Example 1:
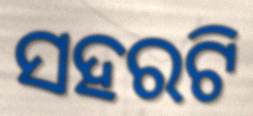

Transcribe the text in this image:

ସହରଟି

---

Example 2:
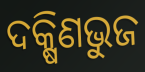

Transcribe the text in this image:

ଦକ୍ଷିଣଭୁଜ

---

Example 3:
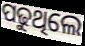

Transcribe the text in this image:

ପଢୁଥିଲେ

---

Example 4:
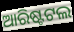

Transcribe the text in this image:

ଆରିଷ୍ଟଟଲ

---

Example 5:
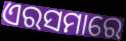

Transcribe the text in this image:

ଏରସମାରେ